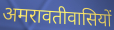
अमरावतीवासियों